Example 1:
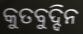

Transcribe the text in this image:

କୁତବୁଦ୍ଦିନ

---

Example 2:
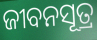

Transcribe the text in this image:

ଜୀବନସୂତ୍ର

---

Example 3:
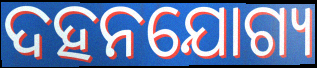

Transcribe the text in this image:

ଦହନଯୋଗ୍ୟ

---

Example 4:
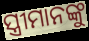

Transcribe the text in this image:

ସ୍ତ୍ରୀମାନଙ୍କୁ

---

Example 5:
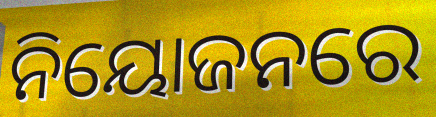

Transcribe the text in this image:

ନିୟୋଜନରେ